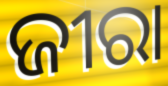
ଜୀରା